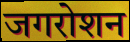
जगरोशन